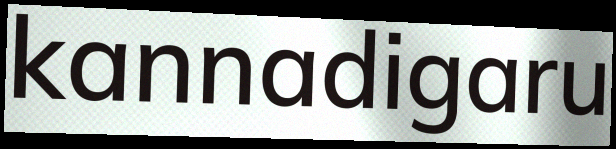
kannadigaru